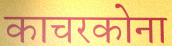
काचरकोना